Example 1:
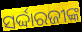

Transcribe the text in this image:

ସର୍ଦ୍ଦାରଜୀଙ୍କ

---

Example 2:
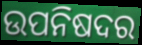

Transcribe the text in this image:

ଉପନିଷଦର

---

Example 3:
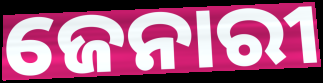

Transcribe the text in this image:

ଜେନାରୀ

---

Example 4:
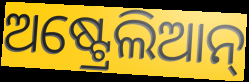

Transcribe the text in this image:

ଅଷ୍ଟ୍ରେଲିଆନ୍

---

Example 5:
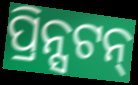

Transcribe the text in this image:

ପ୍ରିନ୍ସଟନ୍